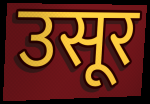
उसूर